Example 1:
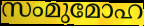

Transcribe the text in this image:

സംമുമോഹ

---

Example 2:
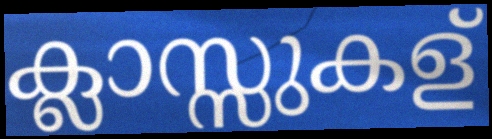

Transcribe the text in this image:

ക്ലാസ്സുകള്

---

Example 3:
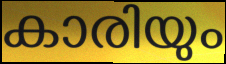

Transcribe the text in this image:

കാരിയും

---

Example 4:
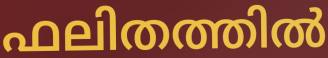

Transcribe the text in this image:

ഫലിതത്തിൽ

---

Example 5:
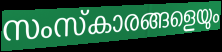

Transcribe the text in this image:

സംസ്‌കാരങ്ങളെയും